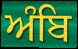
ਅੰਬਿ